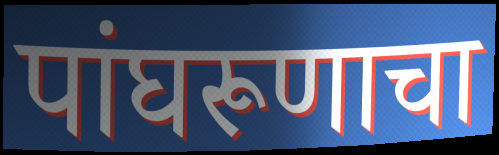
पांघरूणाचा